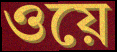
ওয়ে